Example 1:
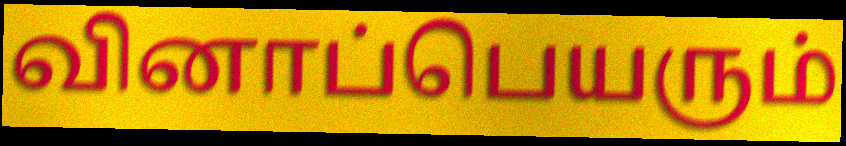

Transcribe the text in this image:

வினாப்பெயரும்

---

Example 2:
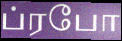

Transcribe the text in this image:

ப்ரபோ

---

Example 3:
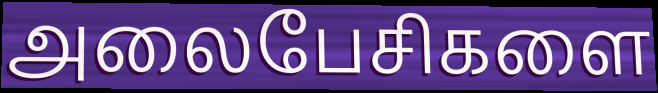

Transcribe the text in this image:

அலைபேசிகளை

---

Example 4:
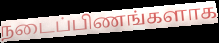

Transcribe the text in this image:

நடைப்பிணங்களாக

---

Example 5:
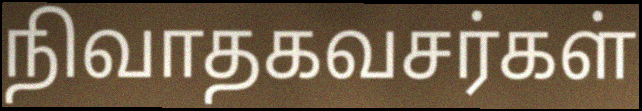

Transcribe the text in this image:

நிவாதகவசர்கள்